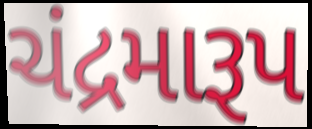
ચંદ્રમારૂપ